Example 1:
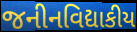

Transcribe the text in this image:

જનીનવિદ્યાકીય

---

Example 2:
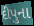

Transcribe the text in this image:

દીપુના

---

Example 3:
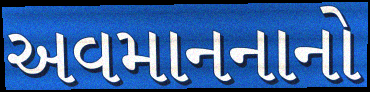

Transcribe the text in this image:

અવમાનનાનો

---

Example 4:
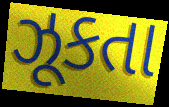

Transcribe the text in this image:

ઝૂકતા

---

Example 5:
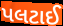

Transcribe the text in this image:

પલટાઈ